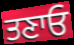
ਤਣਾਓ